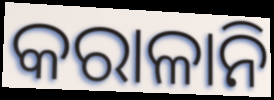
କରାଳାନି